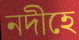
নদীহে